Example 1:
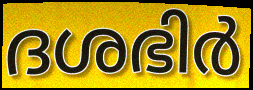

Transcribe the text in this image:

ദശഭിർ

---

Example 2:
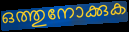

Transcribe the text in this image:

ഒത്തുനോക്കുക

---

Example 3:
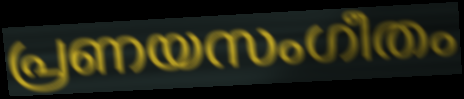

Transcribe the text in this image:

പ്രണയസംഗീതം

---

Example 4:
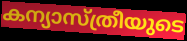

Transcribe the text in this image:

കന്യാസ്ത്രീയുടെ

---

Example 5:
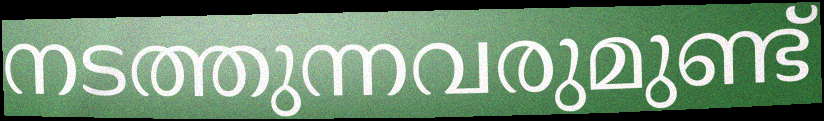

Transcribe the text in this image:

നടത്തുന്നവരുമുണ്ട്